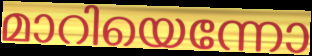
മാറിയെന്നോ